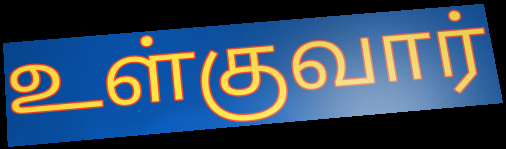
உள்குவார்